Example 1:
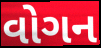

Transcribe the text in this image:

વોગન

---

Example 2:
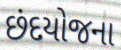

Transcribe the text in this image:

છંદયોજના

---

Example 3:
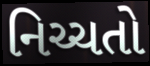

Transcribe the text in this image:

નિચ્ચતો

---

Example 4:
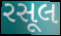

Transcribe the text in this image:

રસૂલ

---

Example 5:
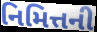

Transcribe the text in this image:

નિમિત્તની